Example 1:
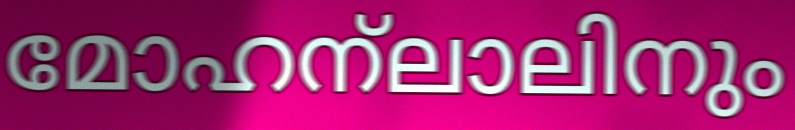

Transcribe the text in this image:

മോഹന്ലാലിനും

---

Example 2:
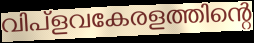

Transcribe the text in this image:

വിപ്ളവകേരളത്തിന്റെ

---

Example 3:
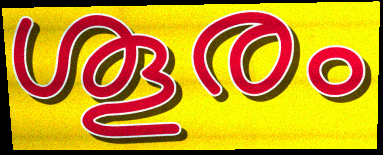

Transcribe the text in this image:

ശൂരം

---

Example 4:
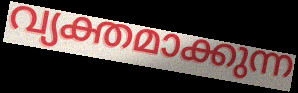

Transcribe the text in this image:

വ്യക്തമാക്കുന്ന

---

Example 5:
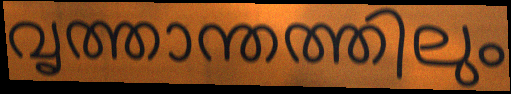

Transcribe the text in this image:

വൃത്താന്തത്തിലും